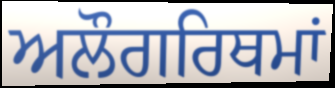
ਅਲੌਗਰਿਥਮਾਂ